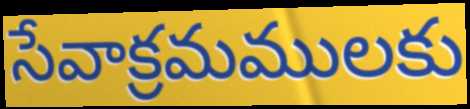
సేవాక్రమములకు